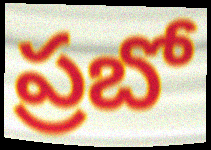
ప్రబో